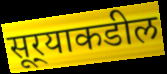
सूर्याकडील